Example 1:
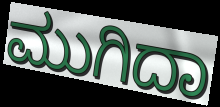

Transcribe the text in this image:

ಮುಗಿದಾ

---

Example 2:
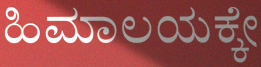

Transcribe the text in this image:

ಹಿಮಾಲಯಕ್ಕೇ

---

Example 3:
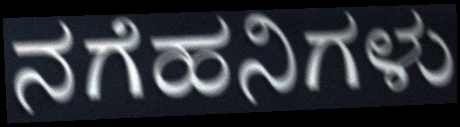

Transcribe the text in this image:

ನಗೆಹನಿಗಳು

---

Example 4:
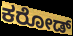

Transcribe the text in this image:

ಕರೋಡ್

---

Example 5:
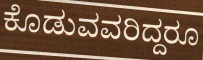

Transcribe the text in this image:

ಕೊಡುವವರಿದ್ದರೂ